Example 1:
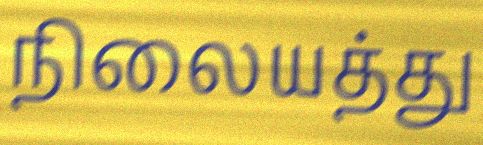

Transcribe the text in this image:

நிலையத்து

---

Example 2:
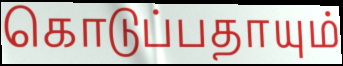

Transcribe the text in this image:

கொடுப்பதாயும்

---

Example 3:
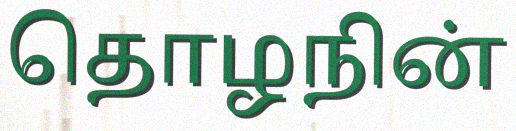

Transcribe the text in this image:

தொழநின்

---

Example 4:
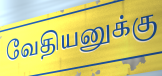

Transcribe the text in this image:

வேதியனுக்கு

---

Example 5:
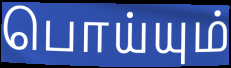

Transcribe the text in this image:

பொய்யும்